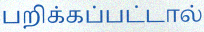
பறிக்கப்பட்டால்